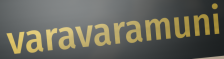
varavaramuni